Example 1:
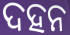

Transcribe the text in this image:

ଦହନ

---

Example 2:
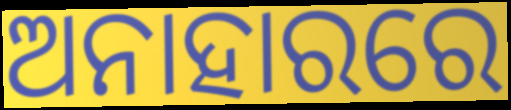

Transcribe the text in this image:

ଅନାହାରରେ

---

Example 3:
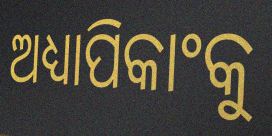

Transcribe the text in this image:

ଅଧ୍ୟାପିକାଂକୁ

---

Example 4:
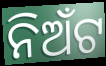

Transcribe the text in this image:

ନିଅଁଟ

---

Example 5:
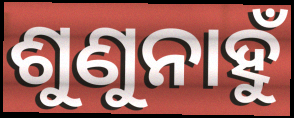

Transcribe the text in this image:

ଶୁଣୁନାହୁଁ